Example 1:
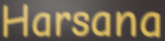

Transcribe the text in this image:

Harsana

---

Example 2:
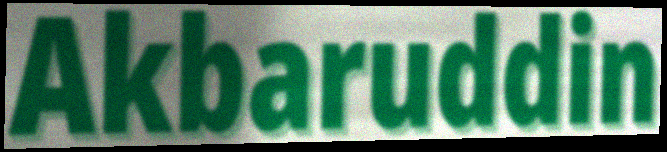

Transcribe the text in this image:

Akbaruddin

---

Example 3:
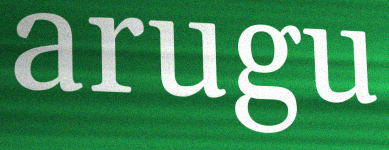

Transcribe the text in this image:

arugu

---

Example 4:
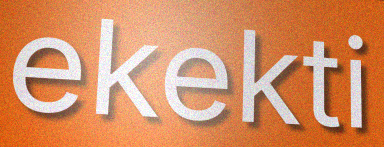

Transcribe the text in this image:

ekekti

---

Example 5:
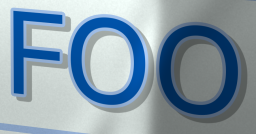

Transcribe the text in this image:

FOO